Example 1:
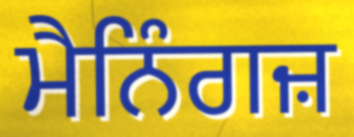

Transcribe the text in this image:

ਮੈਨਿੰਗਜ਼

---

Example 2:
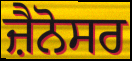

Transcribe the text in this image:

ਜ਼ੈਨੋਸਰ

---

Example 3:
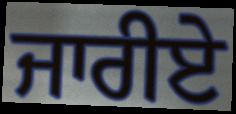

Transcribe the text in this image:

ਜਾਰੀਏ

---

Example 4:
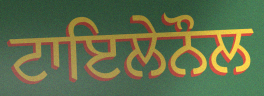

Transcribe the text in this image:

ਟਾਇਲੇਨੌਲ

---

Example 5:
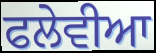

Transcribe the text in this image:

ਫਲੇਵੀਆ